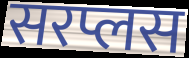
सरप्लस